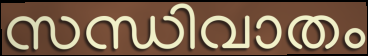
സന്ധിവാതം